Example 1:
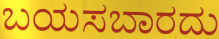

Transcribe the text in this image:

ಬಯಸಬಾರದು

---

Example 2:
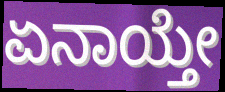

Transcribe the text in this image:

ಏನಾಯ್ತೇ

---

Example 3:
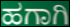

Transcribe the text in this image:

ಹಗಾಗಿ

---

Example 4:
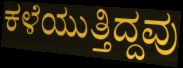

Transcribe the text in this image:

ಕಳೆಯುತ್ತಿದ್ದವು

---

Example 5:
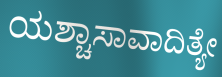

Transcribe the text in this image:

ಯಶ್ಚಾಸಾವಾದಿತ್ಯೇ